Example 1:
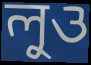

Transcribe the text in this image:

লুও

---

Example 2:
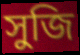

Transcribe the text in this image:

সুজি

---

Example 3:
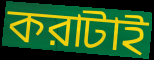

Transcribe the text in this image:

করাটাই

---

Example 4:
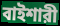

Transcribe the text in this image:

বাইশারী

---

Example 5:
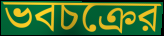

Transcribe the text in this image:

ভবচক্রের